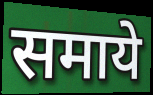
समाये